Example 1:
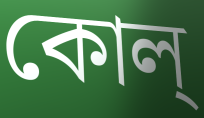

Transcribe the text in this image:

কোল্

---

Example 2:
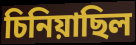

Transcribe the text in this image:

চিনিয়াছিল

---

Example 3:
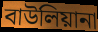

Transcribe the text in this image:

বাউলিয়ানা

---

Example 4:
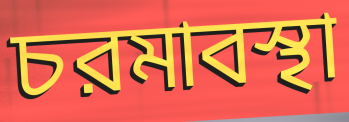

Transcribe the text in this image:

চরমাবস্থা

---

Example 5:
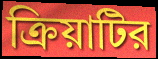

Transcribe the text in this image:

ক্রিয়াটির